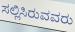
ಸಲ್ಲಿಸಿರುವವರು